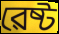
ৱেষ্ট